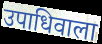
उपाधिवाला